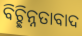
ବିଚ୍ଛିନ୍ନତାବାଦ